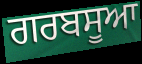
ਗਰਬਸੂਆ